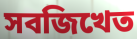
সবজিখেত